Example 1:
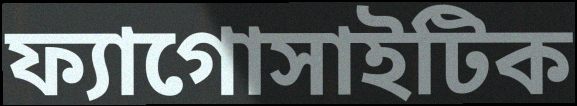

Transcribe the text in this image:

ফ্যাগোসাইটিক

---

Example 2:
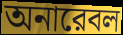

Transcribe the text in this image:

অনারেবল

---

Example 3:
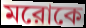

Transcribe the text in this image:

মরোকে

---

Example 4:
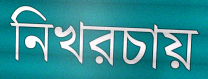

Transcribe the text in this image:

নিখরচায়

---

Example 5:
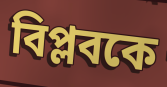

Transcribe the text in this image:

বিপ্লবকে